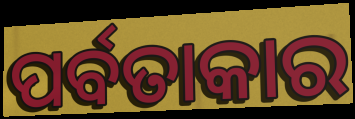
ପର୍ବତାକାର